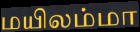
மயிலம்மா